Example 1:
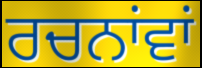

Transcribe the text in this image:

ਰਚਨਾਂਵਾਂ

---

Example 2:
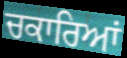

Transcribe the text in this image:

ਚਕਾਰਿਆਂ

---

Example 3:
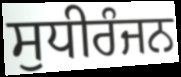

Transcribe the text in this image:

ਸੁਧੀਰੰਜਨ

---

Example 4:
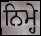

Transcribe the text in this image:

ਨਿਮ੍ਹੇ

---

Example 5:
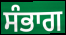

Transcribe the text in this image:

ਸੰਭਾਗ